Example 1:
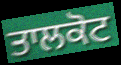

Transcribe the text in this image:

ਤਾਲਕੋਟ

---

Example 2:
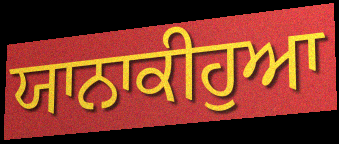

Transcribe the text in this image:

ਯਾਨਾਕੀਹੁਆ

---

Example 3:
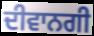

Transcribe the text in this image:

ਦੀਵਾਨਗੀ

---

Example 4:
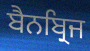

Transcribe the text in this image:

ਬੈਨਬ੍ਰਿਜ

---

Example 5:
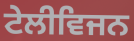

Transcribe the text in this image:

ਟੇਲੀਵਿਜਨ